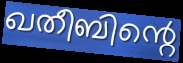
ഖതീബിന്റെ